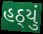
હઠ્યું